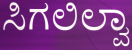
ಸಿಗಲಿಲ್ವಾ